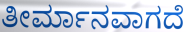
ತೀರ್ಮಾನವಾಗದೆ